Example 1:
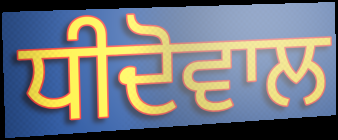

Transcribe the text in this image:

ਧੀਦੋਵਾਲ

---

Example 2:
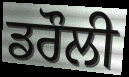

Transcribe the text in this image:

ਡਰੌਲੀ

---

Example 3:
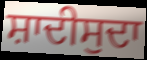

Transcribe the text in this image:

ਸ਼ਾਦੀਸੁਦਾ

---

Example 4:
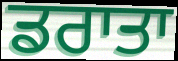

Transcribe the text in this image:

ਡਰਾਤਾ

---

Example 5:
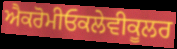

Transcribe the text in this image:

ਐਕਰੋਮੀਓਕਲੇਵੀਕੂਲਰ